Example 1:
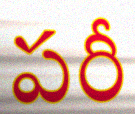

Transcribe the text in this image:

పరీ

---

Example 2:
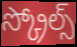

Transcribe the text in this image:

స్క్రోల్స్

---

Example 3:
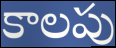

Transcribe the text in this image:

కాలపు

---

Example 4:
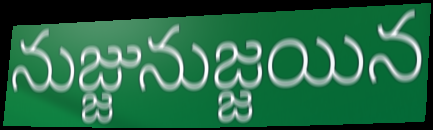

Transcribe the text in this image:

నుజ్జునుజ్జయిన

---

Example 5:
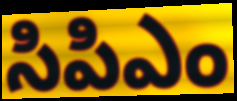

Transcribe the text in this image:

సిపిఎం